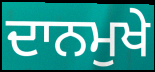
ਦਾਨਮੁਖੇ